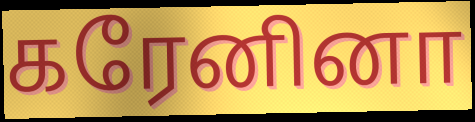
கரேனினா